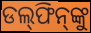
ଡଲ୍‌ଫିନ୍‌ଙ୍କୁ